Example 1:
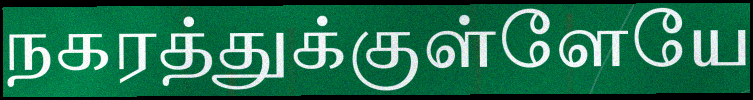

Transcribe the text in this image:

நகரத்துக்குள்ளேயே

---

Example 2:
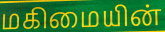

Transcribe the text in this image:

மகிமையின்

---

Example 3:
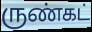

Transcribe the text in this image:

ருண்கட்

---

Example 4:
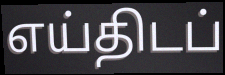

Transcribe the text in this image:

எய்திடப்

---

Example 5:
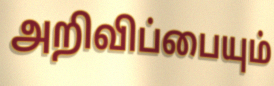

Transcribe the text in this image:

அறிவிப்பையும்